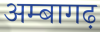
अम्बागढ़